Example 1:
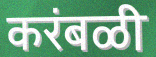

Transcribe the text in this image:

करंबळी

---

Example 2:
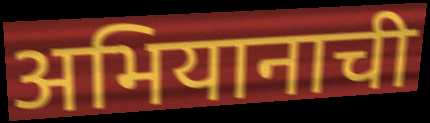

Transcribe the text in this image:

अभियानाची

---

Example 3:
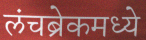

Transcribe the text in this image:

लंचब्रेकमध्ये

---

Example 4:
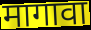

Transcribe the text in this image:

मागावा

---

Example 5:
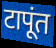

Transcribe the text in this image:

टापूंत